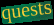
quests